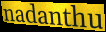
nadanthu